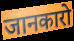
जानकारो